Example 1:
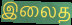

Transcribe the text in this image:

இலைத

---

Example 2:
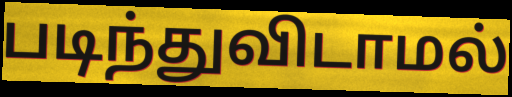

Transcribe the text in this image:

படிந்துவிடாமல்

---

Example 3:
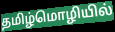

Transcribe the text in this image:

தமிழ்மொழியில்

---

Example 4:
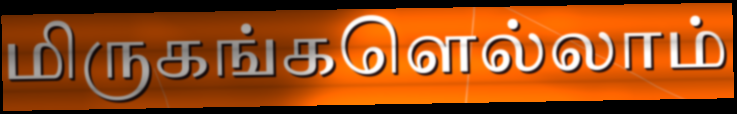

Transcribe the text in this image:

மிருகங்களெல்லாம்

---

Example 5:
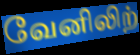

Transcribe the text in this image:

வேனிலிற்